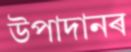
উপাদানৰ